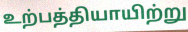
உற்பத்தியாயிற்று